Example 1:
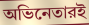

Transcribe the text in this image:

অভিনেতারই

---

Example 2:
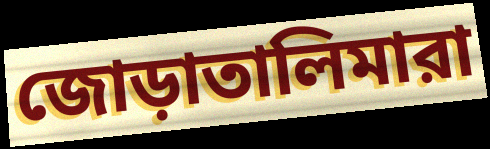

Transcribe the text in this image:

জোড়াতালিমারা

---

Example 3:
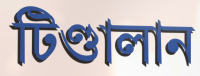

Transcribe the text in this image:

টিণ্ডালান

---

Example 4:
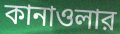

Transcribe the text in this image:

কানাওলার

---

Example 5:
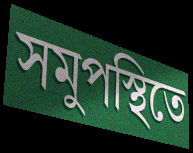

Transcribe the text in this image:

সমুপস্থিতে